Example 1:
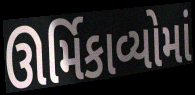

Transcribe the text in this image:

ઊર્મિકાવ્યોમાં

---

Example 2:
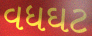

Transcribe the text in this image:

વધઘટ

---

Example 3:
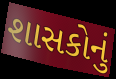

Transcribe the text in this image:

શાસકોનું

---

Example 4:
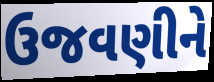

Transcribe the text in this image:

ઉજવણીને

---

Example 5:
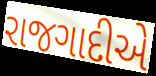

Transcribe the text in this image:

રાજગાદીએ